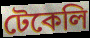
টেকেলি